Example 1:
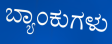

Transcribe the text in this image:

ಬ್ಯಾಂಕುಗಳು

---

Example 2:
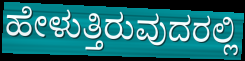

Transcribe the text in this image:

ಹೇಳುತ್ತಿರುವುದರಲ್ಲಿ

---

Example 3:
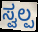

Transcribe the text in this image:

ಸ್ವಲ್ಪ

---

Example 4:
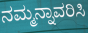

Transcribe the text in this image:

ನಮ್ಮನ್ನಾವರಿಸಿ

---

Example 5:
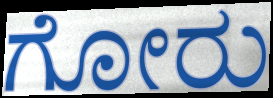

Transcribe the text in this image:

ಗೋರು